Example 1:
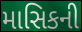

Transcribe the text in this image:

માસિકની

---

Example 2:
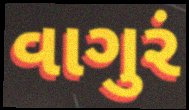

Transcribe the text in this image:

વાગુરં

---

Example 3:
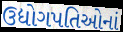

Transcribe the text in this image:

ઉદ્યોગપતિઓનાં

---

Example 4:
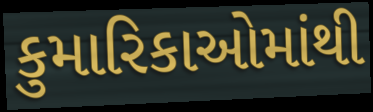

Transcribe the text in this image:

કુમારિકાઓમાંથી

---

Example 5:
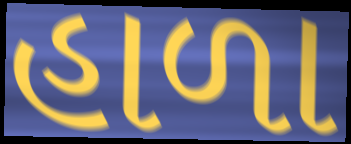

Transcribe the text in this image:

હાળા